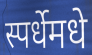
स्पर्धेमधे